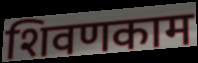
शिवणकाम